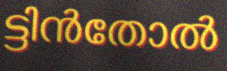
ട്ടിൻതോൽ